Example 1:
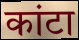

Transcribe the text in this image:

कांटा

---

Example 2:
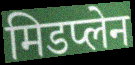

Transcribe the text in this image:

मिडप्लेन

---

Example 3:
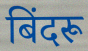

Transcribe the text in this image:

बिंदरू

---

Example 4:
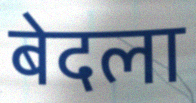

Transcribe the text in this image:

बेदला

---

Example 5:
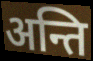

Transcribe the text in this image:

अन्ति